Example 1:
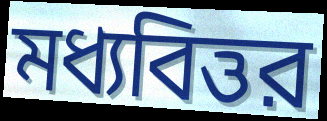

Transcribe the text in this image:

মধ্যবিত্তর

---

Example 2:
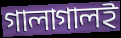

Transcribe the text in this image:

গালাগালই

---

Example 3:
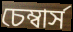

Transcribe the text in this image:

চেম্বার্স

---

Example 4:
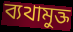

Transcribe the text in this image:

ব্যথামুক্ত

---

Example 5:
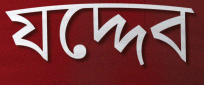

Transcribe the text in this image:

যদ্দেব